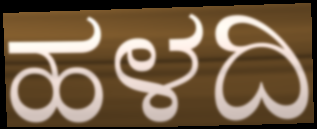
ಹಳದಿ